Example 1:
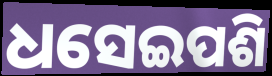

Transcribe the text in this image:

ଧସେଇପଶି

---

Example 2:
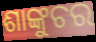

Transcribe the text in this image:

ଶାଙ୍କୁଚର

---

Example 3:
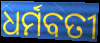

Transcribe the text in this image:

ଧର୍ମବତୀ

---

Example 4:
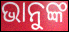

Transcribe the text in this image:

ଭାନୁଙ୍କ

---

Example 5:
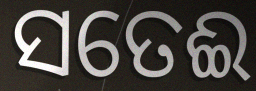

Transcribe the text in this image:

ସତେଈ